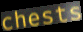
chests